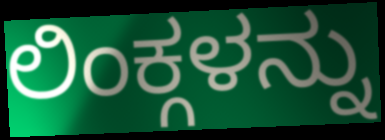
ಲಿಂಕ್ಗಳನ್ನು